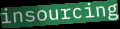
insourcing